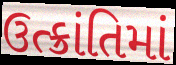
ઉત્ક્રાંતિમાં